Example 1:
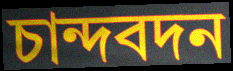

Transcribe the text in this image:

চান্দবদন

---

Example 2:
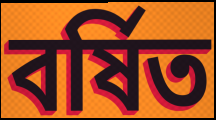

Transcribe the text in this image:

বর্ষিত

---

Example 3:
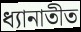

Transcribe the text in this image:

ধ্যানাতীত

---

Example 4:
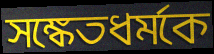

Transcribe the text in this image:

সঙ্কেতধর্মকে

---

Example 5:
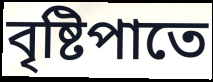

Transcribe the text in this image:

বৃষ্টিপাতে